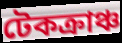
টেকক্রাঞ্চ